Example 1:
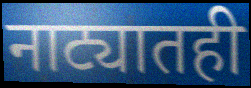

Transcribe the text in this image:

नाट्यातही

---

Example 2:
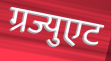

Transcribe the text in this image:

ग्रज्युएट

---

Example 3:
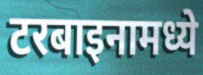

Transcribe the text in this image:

टरबाइनामध्ये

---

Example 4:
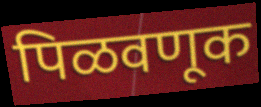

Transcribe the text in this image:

पिळवणूक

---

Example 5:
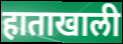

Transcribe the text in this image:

हाताखाली